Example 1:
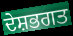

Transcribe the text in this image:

ਦੇਸ਼ਭਗਤ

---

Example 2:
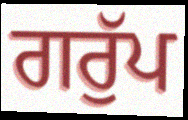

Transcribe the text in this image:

ਗਰੁੱਪ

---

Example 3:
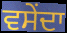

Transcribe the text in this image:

ਵਸੇਂਦਾ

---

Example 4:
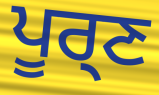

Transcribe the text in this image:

ਪੂਰ੍ਣ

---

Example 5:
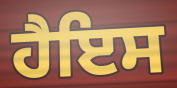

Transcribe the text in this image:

ਹੈਇਸ